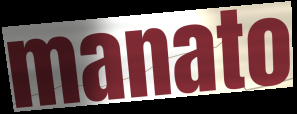
manato